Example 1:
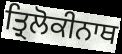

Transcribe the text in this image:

ਤ੍ਰਿਲੋਕੀਨਾਥ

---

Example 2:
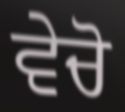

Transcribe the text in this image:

ਵੇਚੋ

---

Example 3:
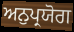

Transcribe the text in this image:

ਅਨੁਪ੍ਰਯੋਗ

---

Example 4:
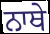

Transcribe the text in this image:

ਨਾਥੇ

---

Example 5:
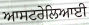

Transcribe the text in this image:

ਆਸਟਰੇਲਿਆਈ